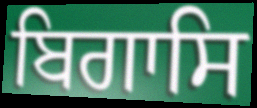
ਬਿਗਾਸਿ